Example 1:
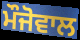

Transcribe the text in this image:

ਮੌਜੋਵਾਲ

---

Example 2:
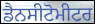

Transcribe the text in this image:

ਡੈਨਸੀਟੋਮੀਟਰ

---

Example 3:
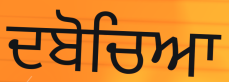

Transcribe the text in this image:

ਦਬੋਚਿਆ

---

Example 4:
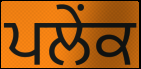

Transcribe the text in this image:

ਪਲੇਂਕ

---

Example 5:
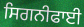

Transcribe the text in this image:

ਸਿਗਨੀਫਾਈ